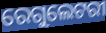
ରେଗୁଲେଟରୀ